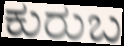
ಕುರುಬ